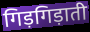
गिड़गिड़ाती